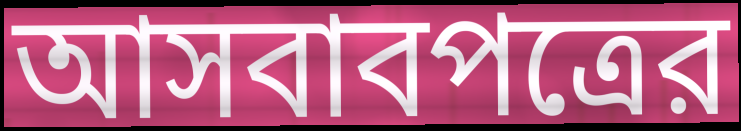
আসবাবপত্রের